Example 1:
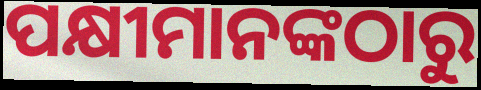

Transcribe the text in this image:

ପକ୍ଷୀମାନଙ୍କଠାରୁ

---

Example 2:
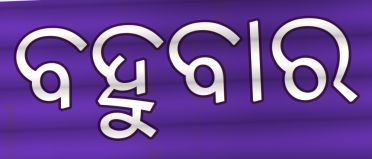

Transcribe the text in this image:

ବହୁବାର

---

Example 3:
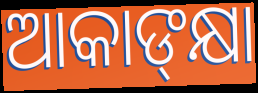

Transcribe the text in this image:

ଆକାଙ୍‌କ୍ଷା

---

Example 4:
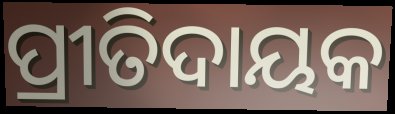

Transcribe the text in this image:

ପ୍ରୀତିଦାୟକ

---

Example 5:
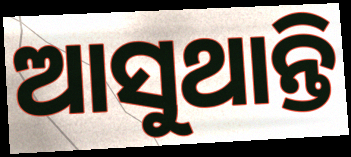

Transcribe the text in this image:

ଆସୁଥାନ୍ତି